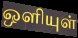
ஒளியுள்